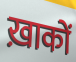
ख़ाकों